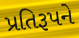
પ્રતિરૂપને